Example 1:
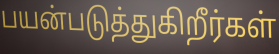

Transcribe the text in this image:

பயன்படுத்துகிறீர்கள்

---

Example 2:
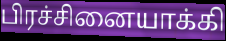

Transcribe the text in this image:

பிரச்சினையாக்கி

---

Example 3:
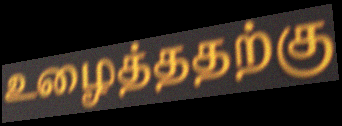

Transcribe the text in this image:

உழைத்ததற்கு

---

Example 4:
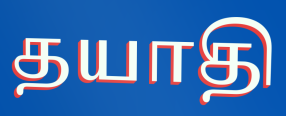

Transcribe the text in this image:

தயாதி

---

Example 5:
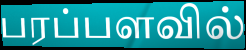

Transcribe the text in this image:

பரப்பளவில்